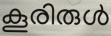
കൂരിരുൾ